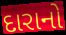
દારાનો